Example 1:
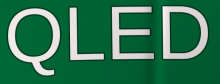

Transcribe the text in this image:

QLED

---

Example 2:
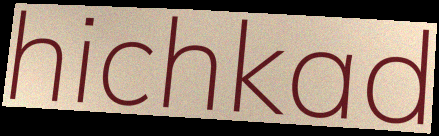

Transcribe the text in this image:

hichkad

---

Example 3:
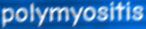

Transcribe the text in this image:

polymyositis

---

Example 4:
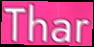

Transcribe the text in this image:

Thar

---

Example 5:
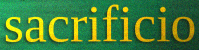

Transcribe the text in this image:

sacrificio